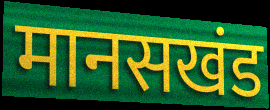
मानसखंड